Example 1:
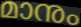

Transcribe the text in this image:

മാനും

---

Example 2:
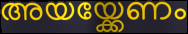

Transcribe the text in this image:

അയയ്ക്കേണം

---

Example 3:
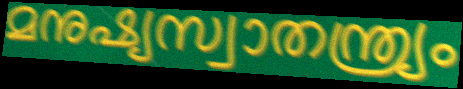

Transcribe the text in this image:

മനുഷ്യസ്വാതന്ത്ര്യം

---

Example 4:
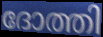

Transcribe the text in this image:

ദോത്തി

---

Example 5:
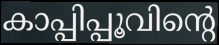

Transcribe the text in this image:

കാപ്പിപ്പൂവിന്റെ